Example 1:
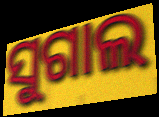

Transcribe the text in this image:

ସୁଗାଲ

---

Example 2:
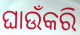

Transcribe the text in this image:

ଘାଉଁକରି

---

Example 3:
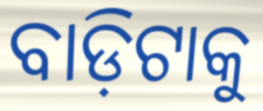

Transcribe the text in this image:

ବାଡ଼ିଟାକୁ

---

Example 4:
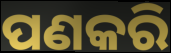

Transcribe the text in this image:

ପଣକରି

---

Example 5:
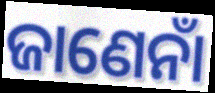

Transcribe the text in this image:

ଜାଣେନାଁ